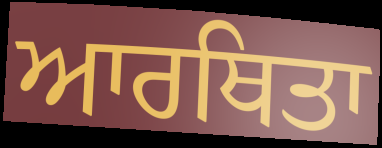
ਆਰਥਿਤਾ